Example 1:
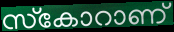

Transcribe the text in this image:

സ്‌കോറാണ്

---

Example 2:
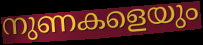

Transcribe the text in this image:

നുണകളെയും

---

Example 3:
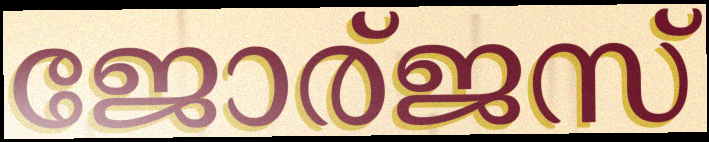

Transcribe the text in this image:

ജോര്ജസ്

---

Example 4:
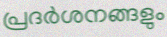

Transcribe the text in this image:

പ്രദർശനങ്ങളും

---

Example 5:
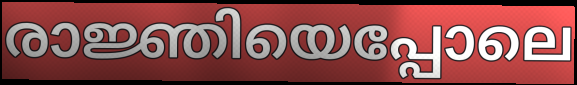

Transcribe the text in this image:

രാജ്ഞിയെപ്പോലെ